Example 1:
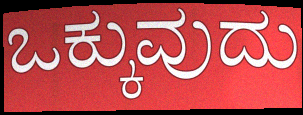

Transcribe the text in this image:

ಒಕ್ಕುವುದು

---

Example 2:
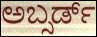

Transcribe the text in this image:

ಅಬ್ಸರ್ಡ್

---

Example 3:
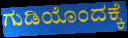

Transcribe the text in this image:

ಗುಡಿಯೊಂದಕ್ಕೆ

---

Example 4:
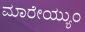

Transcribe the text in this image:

ಮಾರೇಯ್ಯುಂ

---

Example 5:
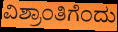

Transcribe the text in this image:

ವಿಶ್ರಾಂತಿಗೆಂದು